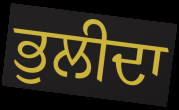
ਭੁਲੀਦਾ